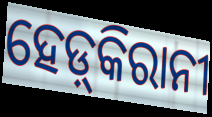
ହେଡ଼୍‌କିରାନୀ